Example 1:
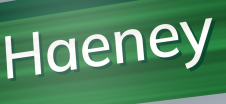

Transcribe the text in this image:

Haeney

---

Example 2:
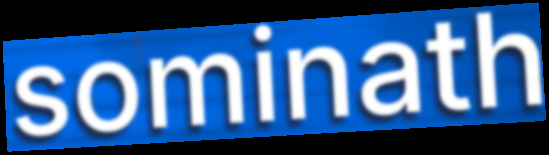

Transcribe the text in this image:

sominath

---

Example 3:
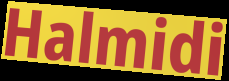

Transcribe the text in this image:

Halmidi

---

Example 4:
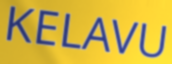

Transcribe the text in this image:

KELAVU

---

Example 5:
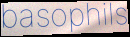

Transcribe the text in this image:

basophils